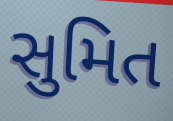
સુમિત